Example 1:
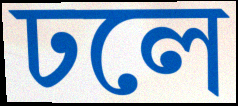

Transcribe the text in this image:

ঢলে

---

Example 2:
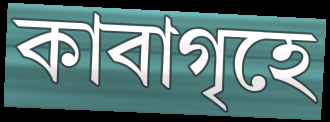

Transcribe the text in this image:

কাবাগৃহে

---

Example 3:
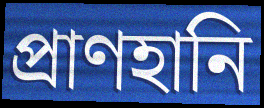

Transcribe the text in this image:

প্রাণহানি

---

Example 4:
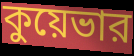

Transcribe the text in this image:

কুয়েভার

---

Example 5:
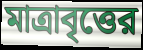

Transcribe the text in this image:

মাত্রাবৃত্তের